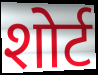
शोर्ट